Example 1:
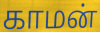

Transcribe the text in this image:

காமன்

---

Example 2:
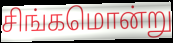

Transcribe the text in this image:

சிங்கமொன்று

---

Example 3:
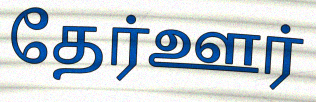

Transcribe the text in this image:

தேர்ஊர்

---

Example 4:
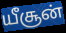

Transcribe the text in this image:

யீசூன்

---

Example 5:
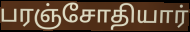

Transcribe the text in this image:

பரஞ்சோதியார்